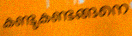
കണ്ടുകണ്ടങ്ങനെ